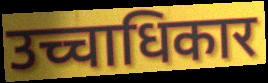
उच्चाधिकार